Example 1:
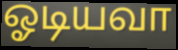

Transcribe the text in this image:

ஓடியவா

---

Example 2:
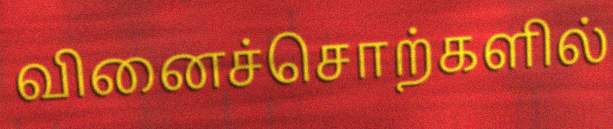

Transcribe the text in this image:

வினைச்சொற்களில்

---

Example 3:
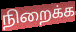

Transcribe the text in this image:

நிறைக்க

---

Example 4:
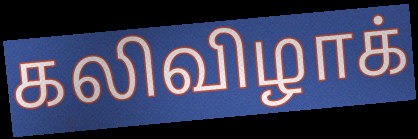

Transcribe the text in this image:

கலிவிழாக்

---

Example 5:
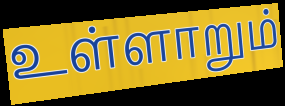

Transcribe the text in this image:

உள்ளாறும்